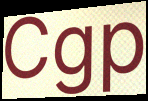
Cgp